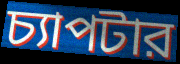
চ্যাপটার